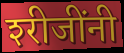
श्रीजींनी